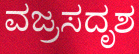
ವಜ್ರಸದೃಶ